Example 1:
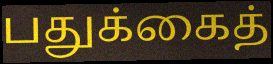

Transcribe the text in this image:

பதுக்கைத்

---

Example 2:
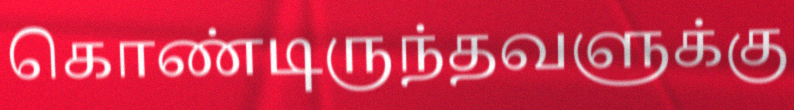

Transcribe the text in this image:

கொண்டிருந்தவளுக்கு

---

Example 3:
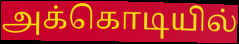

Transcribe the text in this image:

அக்கொடியில்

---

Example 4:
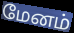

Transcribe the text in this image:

மேனம்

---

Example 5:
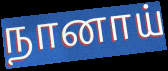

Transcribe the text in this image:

நானாய்